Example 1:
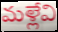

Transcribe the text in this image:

మళ్లేవి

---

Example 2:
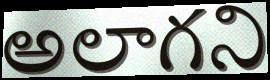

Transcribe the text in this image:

అలాగని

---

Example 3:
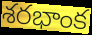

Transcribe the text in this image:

శరభాంక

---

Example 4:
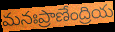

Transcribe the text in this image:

మనఃప్రాణేంద్రియ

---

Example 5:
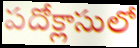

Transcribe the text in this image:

పదోక్లాసులో